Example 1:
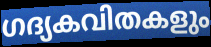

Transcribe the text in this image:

ഗദ്യകവിതകളും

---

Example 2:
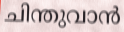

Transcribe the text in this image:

ചിന്തുവാൻ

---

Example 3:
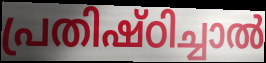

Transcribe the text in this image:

പ്രതിഷ്ഠിച്ചാൽ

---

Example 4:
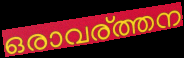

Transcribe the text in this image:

ഒരാവര്ത്തന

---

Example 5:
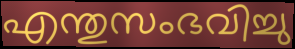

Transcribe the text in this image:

എന്തുസംഭവിച്ചു